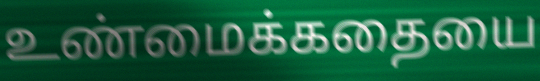
உண்மைக்கதையை